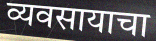
व्यवसायाचा